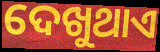
ଦେଖୁଥାଏ